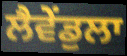
ਲੈਵੇਂਡੁਲਾ